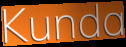
Kunda